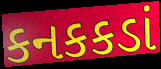
કનકકડાં